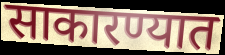
साकारण्यात